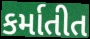
કર્માતીત